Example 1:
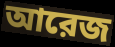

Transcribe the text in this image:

আরেজ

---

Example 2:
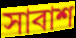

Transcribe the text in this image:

সাবাশ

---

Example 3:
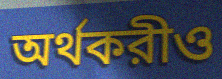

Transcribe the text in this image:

অর্থকরীও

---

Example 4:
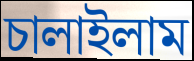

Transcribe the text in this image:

চালাইলাম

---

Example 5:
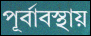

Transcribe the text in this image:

পূর্বাবস্থায়